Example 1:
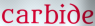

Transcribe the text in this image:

carbide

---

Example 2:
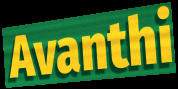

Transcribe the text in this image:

Avanthi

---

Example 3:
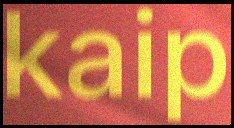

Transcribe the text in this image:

kaip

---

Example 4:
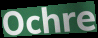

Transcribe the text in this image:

Ochre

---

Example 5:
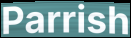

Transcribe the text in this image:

Parrish